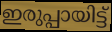
ഇരുപ്പായിട്ട്